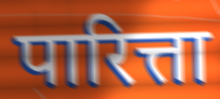
पारित्ता